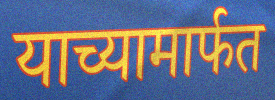
याच्यामार्फत